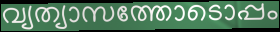
വ്യത്യാസത്തോടൊപ്പം